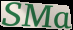
SMa